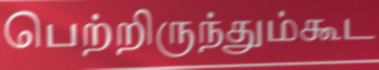
பெற்றிருந்தும்கூட